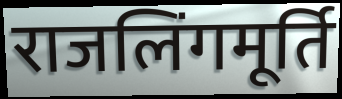
राजलिंगमूर्ति